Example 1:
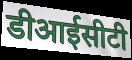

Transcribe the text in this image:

डीआईसीटी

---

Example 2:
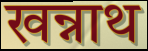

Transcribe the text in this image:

खन्नाथ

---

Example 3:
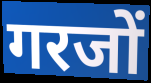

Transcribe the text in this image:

गरजों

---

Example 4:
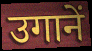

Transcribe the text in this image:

उगानें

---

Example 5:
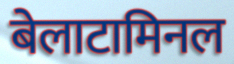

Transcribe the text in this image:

बेलाटामिनल